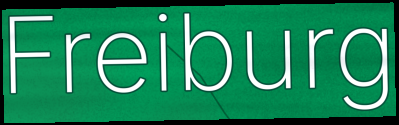
Freiburg